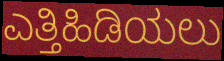
ಎತ್ತಿಹಿಡಿಯಲು